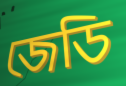
জেডি